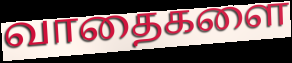
வாதைகளை